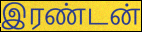
இரண்டன்